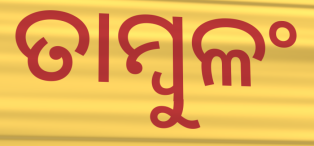
ତାମ୍ବୁଳଂ